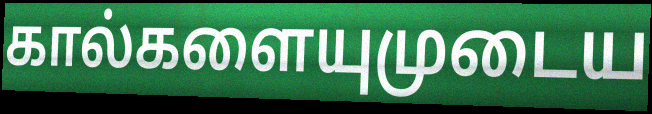
கால்களையுமுடைய